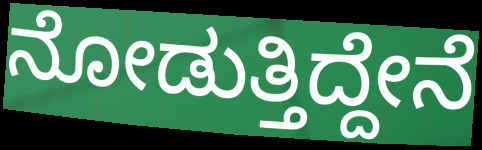
ನೋಡುತ್ತಿದ್ದೇನೆ